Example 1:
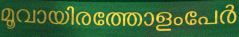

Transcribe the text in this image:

മൂവായിരത്തോളംപേർ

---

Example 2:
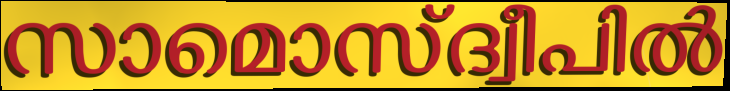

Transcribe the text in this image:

സാമൊസ്ദ്വീപിൽ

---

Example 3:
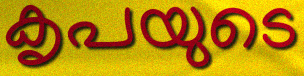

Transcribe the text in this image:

കൃപയുടെ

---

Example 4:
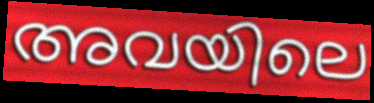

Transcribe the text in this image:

അവയിലെ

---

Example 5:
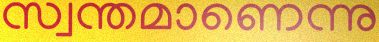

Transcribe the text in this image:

സ്വന്തമാണെന്നു